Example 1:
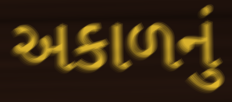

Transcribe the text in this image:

અકાળનું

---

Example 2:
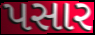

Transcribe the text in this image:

પસાર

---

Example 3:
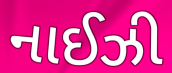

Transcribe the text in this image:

નાઈઝી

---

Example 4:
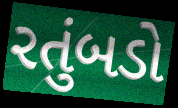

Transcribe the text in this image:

રતુંબડો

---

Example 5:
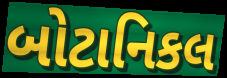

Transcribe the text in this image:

બોટાનિકલ